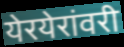
येरयेरांवरी